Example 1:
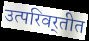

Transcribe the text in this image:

उत्परिवर्तीत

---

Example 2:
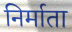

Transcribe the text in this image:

निर्माता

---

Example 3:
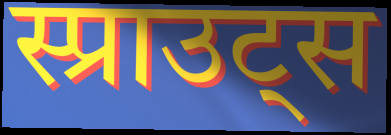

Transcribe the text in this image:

स्प्राउट्स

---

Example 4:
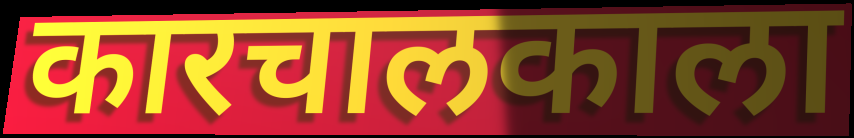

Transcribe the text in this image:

कारचालकाला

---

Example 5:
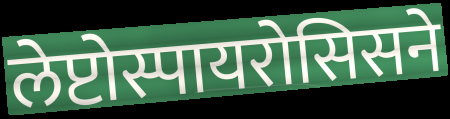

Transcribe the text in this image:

लेप्टोस्पायरोसिसने